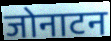
जोनाटन